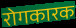
रोगकारक